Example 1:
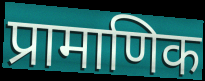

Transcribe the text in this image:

प्रामाणिक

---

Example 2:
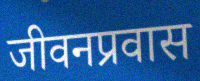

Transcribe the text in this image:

जीवनप्रवास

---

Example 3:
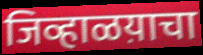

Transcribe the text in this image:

जिव्हाळय़ाचा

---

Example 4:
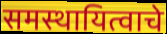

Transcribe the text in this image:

समस्थायित्वाचे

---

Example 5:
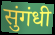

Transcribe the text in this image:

सुंगंधी